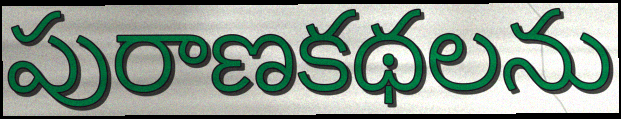
పురాణకథలను